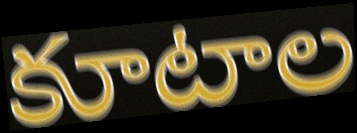
కూటాల